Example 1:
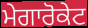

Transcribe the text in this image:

ਮੇਗਾਰੋਕੇਟ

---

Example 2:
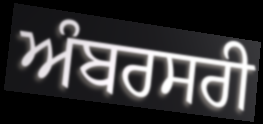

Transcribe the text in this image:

ਅੰਬਰਸਰੀ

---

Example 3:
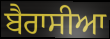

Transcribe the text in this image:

ਬੈਰਾਸੀਆ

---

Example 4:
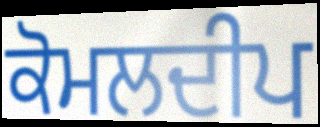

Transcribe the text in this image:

ਕੋਮਲਦੀਪ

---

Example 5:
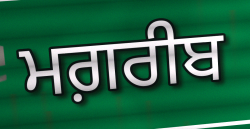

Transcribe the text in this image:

ਮਗ਼ਰੀਬ